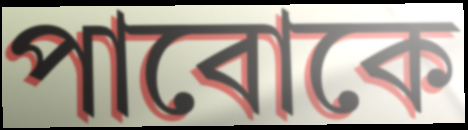
পাবোকে